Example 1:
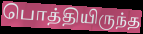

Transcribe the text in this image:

பொத்தியிருந்த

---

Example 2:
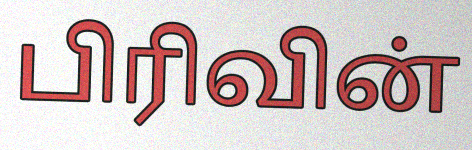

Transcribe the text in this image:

பிரிவின்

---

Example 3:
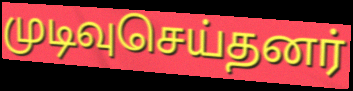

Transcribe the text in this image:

முடிவுசெய்தனர்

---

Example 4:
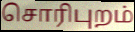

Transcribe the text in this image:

சொரிபுறம்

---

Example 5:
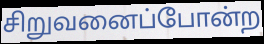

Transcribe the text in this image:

சிறுவனைப்போன்ற